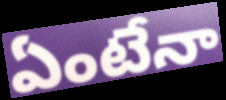
ఏంటేనా